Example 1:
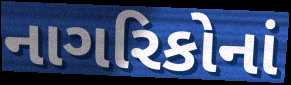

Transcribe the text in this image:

નાગરિકોનાં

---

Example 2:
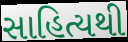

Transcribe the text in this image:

સાહિત્યથી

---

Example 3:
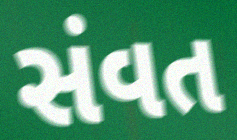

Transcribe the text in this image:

સંવત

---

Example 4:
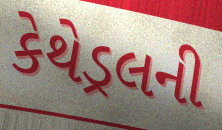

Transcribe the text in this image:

કેથેડ્રલની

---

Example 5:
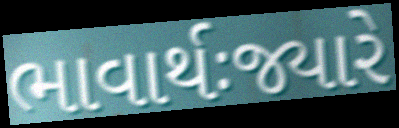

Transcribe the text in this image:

ભાવાર્થઃજ્યારે